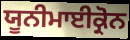
ਯੂਨੀਮਾਈਕ੍ਰੋਨ